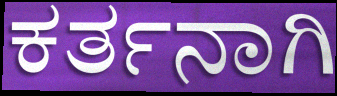
ಕರ್ತನಾಗಿ